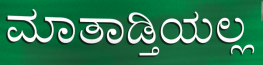
ಮಾತಾಡ್ತಿಯಲ್ಲ